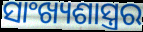
ସାଂଖ୍ୟଶାସ୍ତ୍ରର